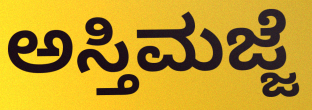
ಅಸ್ತಿಮಜ್ಜೆ